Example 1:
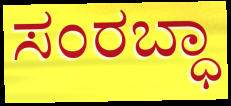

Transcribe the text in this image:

ಸಂರಬ್ಧಾ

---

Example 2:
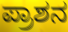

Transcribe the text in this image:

ಪ್ರಾಶನ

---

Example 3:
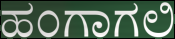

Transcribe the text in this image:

ಹಂಗಾಗಲಿ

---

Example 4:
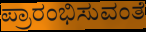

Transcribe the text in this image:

ಪ್ರಾರಂಭಿಸುವಂತೆ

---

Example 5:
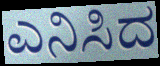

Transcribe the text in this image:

ಎನಿಸಿದ